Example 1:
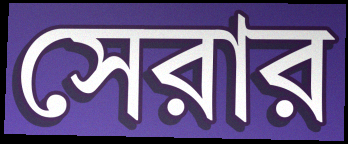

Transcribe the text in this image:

সেরার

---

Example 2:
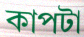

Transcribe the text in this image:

কাপটা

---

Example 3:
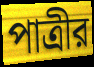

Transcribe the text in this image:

পাত্রীর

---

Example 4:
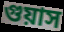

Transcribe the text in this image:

গুয়াস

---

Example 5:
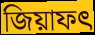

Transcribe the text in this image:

জিয়াফৎ